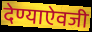
देण्याऐवजी